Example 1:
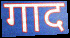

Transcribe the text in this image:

गाद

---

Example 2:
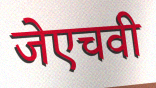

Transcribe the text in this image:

जेएचवी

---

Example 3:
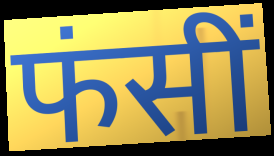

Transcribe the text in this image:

फंसीं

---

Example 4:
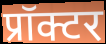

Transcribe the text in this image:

प्रॉक्टर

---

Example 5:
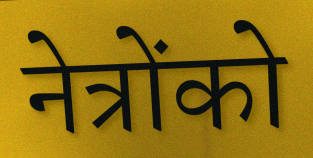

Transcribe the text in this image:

नेत्रोंको